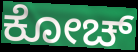
ಕೋಚ್